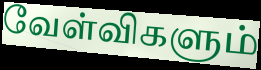
வேள்விகளும்